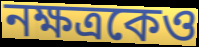
নক্ষত্রকেও